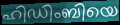
ഹിഡിംബിയെ